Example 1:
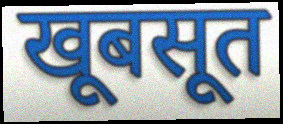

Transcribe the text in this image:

खूबसूत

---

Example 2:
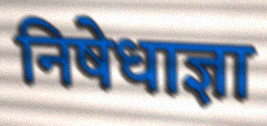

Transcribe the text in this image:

निषेधाज्ञा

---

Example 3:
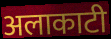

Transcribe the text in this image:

अलाकाटी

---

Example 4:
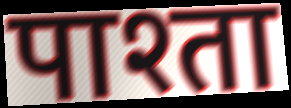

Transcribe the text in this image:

पाश्ता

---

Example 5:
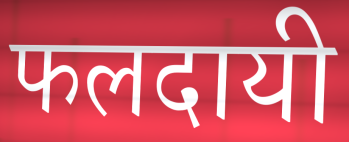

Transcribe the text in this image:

फलदायी